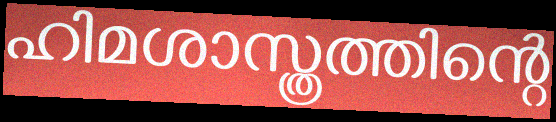
ഹിമശാസ്ത്രത്തിന്റെ